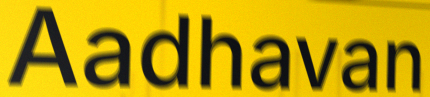
Aadhavan